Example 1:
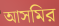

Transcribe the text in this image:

আসমির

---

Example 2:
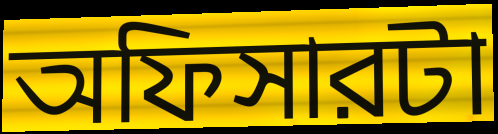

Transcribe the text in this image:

অফিসারটা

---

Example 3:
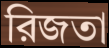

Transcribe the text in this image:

রিজতা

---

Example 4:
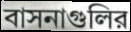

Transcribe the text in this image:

বাসনাগুলির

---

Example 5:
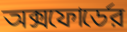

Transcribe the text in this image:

অক্সফোর্ডের